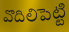
వొదిలిపెట్టి